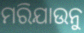
ମରିଯାଉନୁ